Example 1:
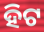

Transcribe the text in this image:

ହିଟ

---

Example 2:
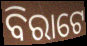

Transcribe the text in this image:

ବିରାଟେ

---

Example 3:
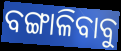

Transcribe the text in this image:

ବଙ୍ଗାଳିବାବୁ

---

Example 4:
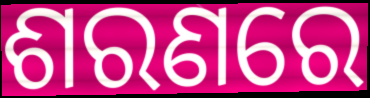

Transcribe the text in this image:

ଶରଣରେ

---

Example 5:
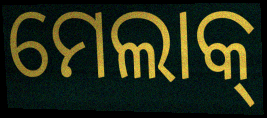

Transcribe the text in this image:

ମେଲାକ୍